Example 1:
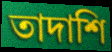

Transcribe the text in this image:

তাদাশি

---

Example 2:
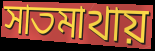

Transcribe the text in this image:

সাতমাথায়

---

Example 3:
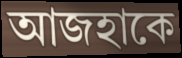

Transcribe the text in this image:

আজহাকে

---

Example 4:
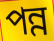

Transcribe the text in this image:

পন্ন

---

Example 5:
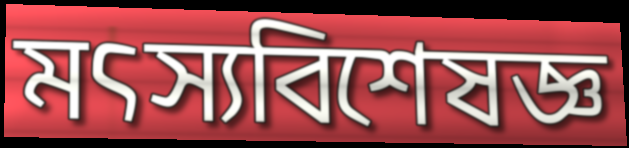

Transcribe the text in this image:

মৎস্যবিশেষজ্ঞ